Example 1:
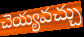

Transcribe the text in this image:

చెయ్యవచ్చు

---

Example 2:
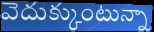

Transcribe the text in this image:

వెదుక్కుంటున్నా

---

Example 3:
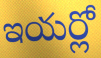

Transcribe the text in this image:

ఇయర్లో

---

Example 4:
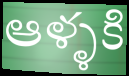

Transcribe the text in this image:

ఆళ్ళకి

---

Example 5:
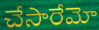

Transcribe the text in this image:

చేసారేమో